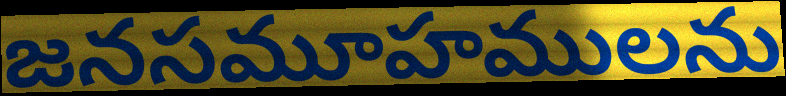
జనసమూహములను